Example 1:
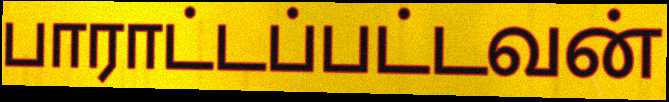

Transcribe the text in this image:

பாராட்டப்பட்டவன்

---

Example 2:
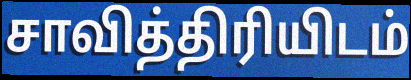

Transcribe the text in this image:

சாவித்திரியிடம்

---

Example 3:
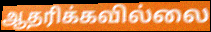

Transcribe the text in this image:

ஆதரிக்கவில்லை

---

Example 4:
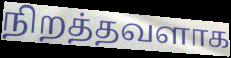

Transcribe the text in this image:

நிறத்தவளாக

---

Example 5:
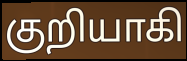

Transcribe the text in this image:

குறியாகி